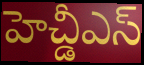
హెచ్డీఎస్